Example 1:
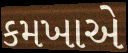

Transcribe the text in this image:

કમખાએ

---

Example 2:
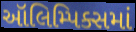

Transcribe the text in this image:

ઑલિમ્પિક્સમાં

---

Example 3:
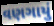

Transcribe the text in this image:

વણગાયું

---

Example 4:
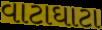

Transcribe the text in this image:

વાટાઘાટા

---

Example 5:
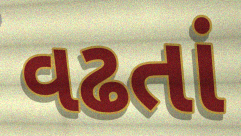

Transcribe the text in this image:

વઢતાં